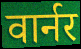
वार्नर